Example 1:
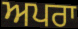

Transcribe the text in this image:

ਅਪਰਾ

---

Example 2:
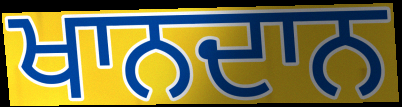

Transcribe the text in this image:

ਖਾਨਦਾਨ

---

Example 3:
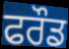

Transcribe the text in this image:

ਫਰੌਡ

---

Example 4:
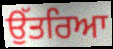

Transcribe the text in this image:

ਉੱਤਰਿਆ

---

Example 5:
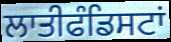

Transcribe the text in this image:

ਲਾਤੀਫੰਡਿਸਟਾਂ